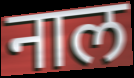
नाल